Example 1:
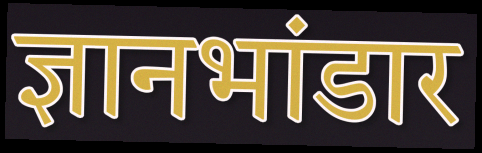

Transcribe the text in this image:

ज्ञानभांडार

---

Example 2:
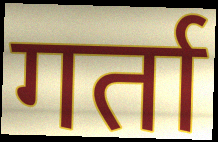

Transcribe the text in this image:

गर्ता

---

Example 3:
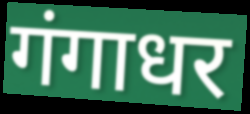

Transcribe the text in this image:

गंगाधर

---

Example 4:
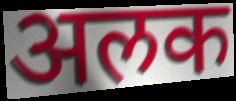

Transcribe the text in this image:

अलक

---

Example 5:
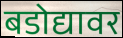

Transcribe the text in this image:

बडोद्यावर